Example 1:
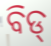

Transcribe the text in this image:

ବିଡ୍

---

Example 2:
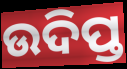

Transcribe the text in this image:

ଉଦିପ୍ତ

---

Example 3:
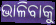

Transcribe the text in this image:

ଭାଳିବାକୁ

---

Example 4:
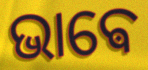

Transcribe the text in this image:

ଭାଵେ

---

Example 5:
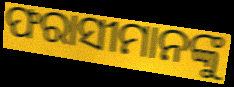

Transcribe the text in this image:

ଫରାସୀମାନଙ୍କୁ